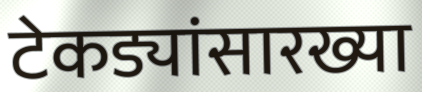
टेकड्यांसारख्या